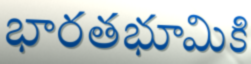
భారతభూమికి